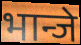
भान्जे